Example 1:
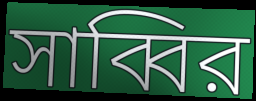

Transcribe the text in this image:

সাব্বির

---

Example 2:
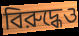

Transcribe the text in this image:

বিরুদ্ধেও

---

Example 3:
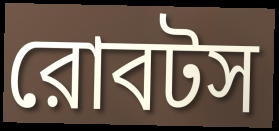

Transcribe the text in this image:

রোবটস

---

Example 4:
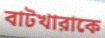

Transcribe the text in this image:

বাটখারাকে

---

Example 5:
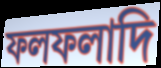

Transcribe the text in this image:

ফলফলাদি